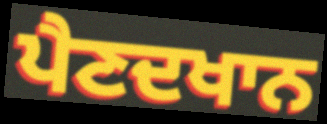
ਪੈਣਦਖਾਨ